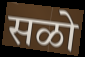
सळो